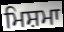
ਮਿਸ਼ਮਾ